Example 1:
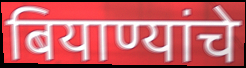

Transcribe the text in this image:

बियाण्यांचे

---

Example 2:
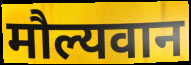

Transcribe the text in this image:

मौल्यवान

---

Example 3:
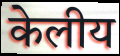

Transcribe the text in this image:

केलीय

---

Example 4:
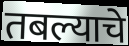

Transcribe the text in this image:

तबल्याचे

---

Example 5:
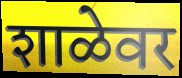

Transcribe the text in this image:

शाळेवर